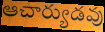
ఆచార్యుడవు